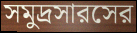
সমুদ্রসারসের